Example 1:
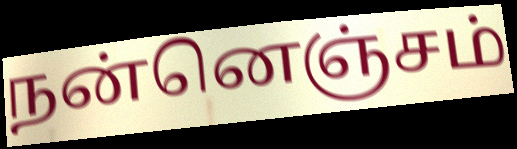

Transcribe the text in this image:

நன்னெஞ்சம்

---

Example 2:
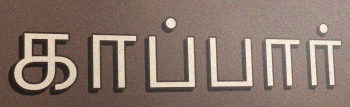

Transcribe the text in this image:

காப்பார்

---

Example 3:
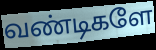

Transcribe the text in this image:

வண்டிகளே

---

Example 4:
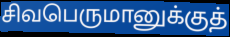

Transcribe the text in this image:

சிவபெருமானுக்குத்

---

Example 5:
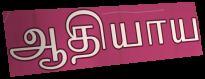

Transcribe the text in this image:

ஆதியாய